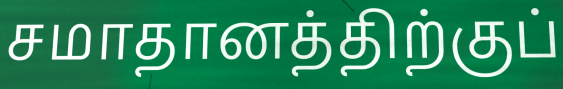
சமாதானத்திற்குப்